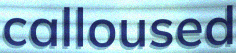
calloused